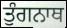
ਤੁੰਗਨਾਥ